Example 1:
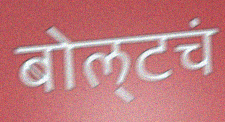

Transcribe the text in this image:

बोल्टचं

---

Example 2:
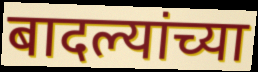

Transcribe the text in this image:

बादल्यांच्या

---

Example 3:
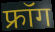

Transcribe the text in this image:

फ्रॉग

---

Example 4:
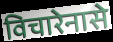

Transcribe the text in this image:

विचारेनासे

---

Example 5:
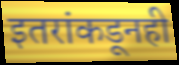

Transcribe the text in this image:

इतरांकडूनही